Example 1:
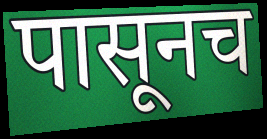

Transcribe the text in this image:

पासूनच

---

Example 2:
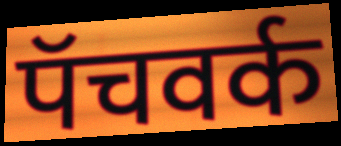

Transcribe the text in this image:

पॅचवर्क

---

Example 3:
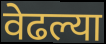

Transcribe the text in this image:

वेढल्या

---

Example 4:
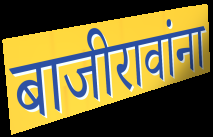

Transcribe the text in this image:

बाजीरावांना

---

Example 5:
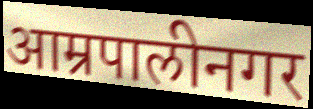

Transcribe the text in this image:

आम्रपालीनगर